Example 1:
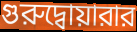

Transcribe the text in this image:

গুরুদ্বোয়ারার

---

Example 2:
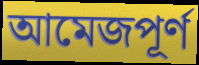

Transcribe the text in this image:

আমেজপূর্ণ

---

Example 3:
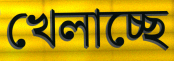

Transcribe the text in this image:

খেলাচ্ছে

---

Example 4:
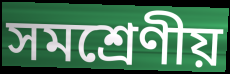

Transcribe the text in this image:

সমশ্রেণীয়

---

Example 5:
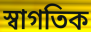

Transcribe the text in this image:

স্বাগতিক